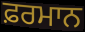
ਫ਼ਰਮਾਨ